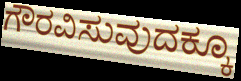
ಗೌರವಿಸುವುದಕ್ಕೂ